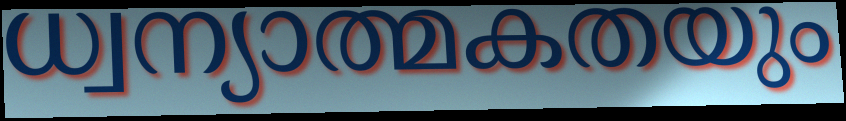
ധ്വന്യാത്മകതയും